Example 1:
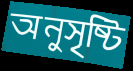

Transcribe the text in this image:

অনুসৃষ্টি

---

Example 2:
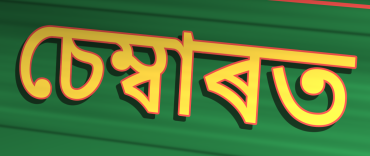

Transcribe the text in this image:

চেম্বাৰত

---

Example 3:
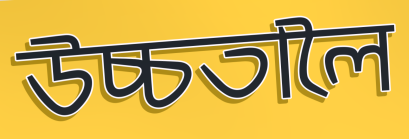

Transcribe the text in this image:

উচ্চতালৈ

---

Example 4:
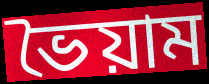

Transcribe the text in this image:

ভৈয়াম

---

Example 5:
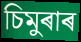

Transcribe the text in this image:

চিমুৰাৰ